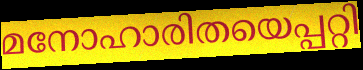
മനോഹാരിതയെപ്പറ്റി